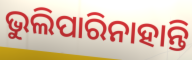
ଭୁଲିପାରିନାହାନ୍ତି